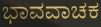
ಭಾವವಾಚಕ